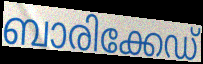
ബാരിക്കേഡ്